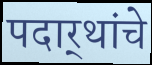
पदार्थांचे